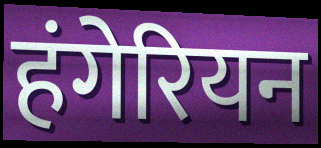
हंगेरियन